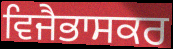
ਵਿਜੈਭਾਸਕਰ